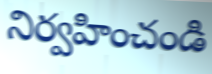
నిర్వహించండి